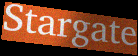
Stargate